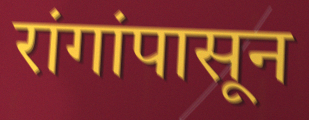
रांगांपासून